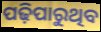
ପଢ଼ିପାରୁଥିବ